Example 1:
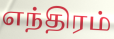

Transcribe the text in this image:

எந்திரம்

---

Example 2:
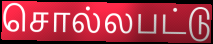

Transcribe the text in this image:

சொல்லபட்டு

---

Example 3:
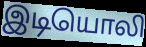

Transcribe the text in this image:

இடியொலி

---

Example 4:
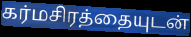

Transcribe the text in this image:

கர்மசிரத்தையுடன்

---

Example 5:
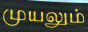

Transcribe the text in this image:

முயலும்